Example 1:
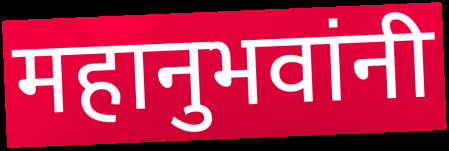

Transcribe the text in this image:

महानुभवांनी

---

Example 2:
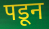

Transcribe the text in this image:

पडून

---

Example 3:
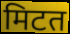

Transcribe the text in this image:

मिटत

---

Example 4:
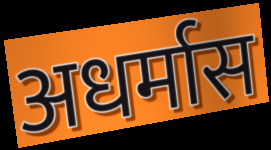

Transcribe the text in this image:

अधर्मास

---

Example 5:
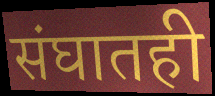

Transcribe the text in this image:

संघातही